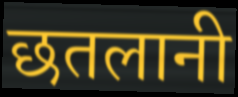
छतलानी